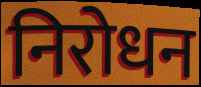
निरोधन